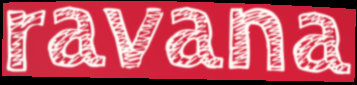
ravana